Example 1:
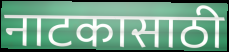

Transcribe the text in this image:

नाटकासाठी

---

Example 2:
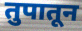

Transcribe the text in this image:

तुपातून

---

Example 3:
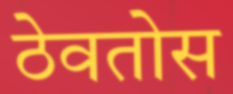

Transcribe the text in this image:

ठेवतोस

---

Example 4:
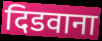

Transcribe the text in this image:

दिडवाना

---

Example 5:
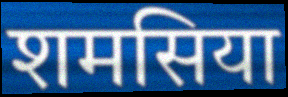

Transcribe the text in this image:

शमसिया